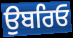
ਉਬਰਿਓ